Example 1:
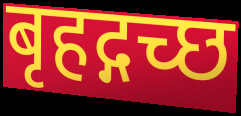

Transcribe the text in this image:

बृहद्गच्छ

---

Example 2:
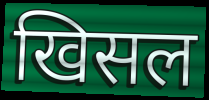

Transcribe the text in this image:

खिसल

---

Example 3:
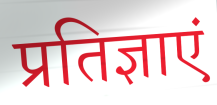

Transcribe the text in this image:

प्रतिज्ञाएं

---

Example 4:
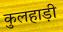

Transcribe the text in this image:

कुलहाड़ी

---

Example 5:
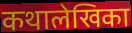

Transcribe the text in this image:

कथालेखिका